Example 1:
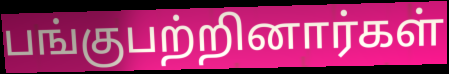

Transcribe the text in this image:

பங்குபற்றினார்கள்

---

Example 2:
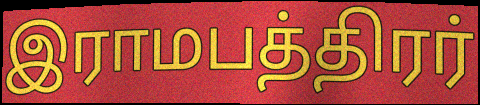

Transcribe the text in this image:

இராமபத்திரர்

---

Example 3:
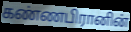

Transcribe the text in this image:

கண்ணபிரானின்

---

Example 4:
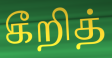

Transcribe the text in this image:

கீறித்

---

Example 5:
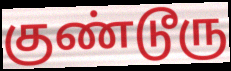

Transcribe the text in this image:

குண்டூரு